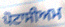
ਪੋਟਾਸੀਅਮ